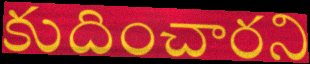
కుదించారని